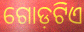
ଗୋଡ଼ଟିଏ